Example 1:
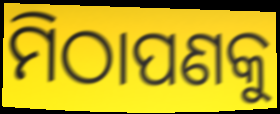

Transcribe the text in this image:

ମିଠାପଣକୁ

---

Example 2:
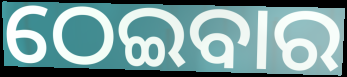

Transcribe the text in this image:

ଠେଇବାର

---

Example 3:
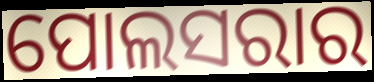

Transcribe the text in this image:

ପୋଲସରାର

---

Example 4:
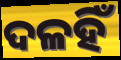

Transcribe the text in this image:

ଦଳହିଁ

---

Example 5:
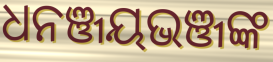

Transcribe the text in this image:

ଧନଞ୍ଜୟଭଞ୍ଜଙ୍କ